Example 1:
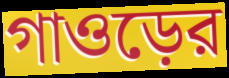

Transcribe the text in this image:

গাওড়ের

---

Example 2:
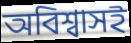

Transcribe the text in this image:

অবিশ্বাসই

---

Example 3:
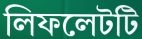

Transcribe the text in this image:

লিফলেটটি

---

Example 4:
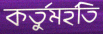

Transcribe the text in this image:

কর্তুমর্হতি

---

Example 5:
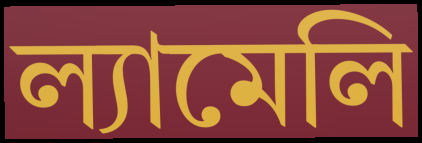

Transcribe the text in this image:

ল্যামেলি